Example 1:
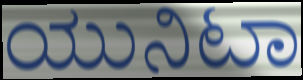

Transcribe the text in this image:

ಯುನಿಟಾ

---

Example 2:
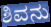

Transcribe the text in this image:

ಶಿವನು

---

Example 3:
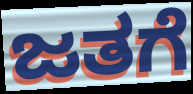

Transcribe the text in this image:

ಜತಗೆ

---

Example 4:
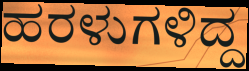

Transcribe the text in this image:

ಹರಳುಗಳಿದ್ದ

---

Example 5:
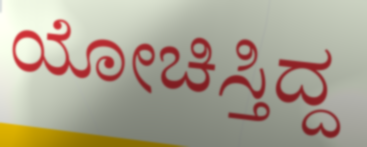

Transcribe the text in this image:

ಯೋಚಿಸ್ತಿದ್ದ